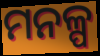
ମନଳ୍ପ